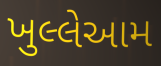
ખુલ્લેઆમ